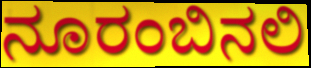
ನೂರಂಬಿನಲಿ